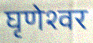
घृणेश्वर